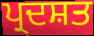
ਪ੍ਰਦਸ਼ਤ